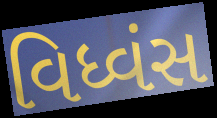
વિધ્વંસ